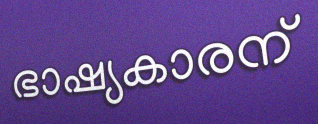
ഭാഷ്യകാരന്